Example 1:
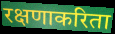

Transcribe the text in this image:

रक्षणाकरिता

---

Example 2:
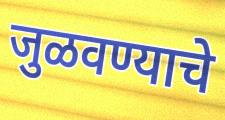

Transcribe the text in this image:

जुळवण्याचे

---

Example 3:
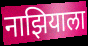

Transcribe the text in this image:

नाझियाला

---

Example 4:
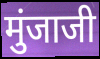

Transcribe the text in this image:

मुंजाजी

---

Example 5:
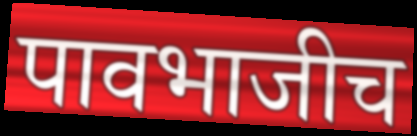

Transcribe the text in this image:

पावभाजीच